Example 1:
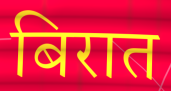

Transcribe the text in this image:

बिरात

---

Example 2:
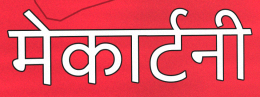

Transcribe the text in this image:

मेकार्टनी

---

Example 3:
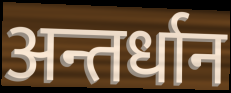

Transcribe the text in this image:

अन्तर्धान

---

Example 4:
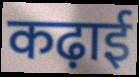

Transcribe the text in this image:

कढ़ाई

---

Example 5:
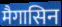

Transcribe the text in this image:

मैगासिन